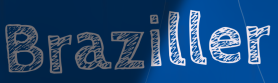
Braziller